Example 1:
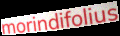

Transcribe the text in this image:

morindifolius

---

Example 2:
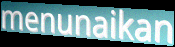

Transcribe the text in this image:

menunaikan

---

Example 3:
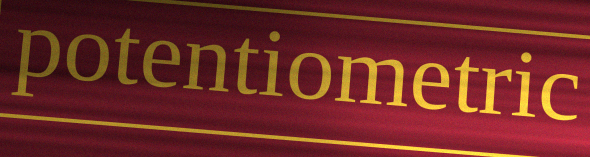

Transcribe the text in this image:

potentiometric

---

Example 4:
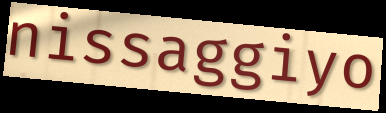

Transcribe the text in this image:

nissaggiyo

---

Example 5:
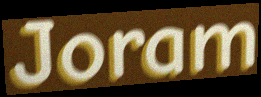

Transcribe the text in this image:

Joram